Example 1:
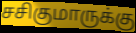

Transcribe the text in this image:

சசிகுமாருக்கு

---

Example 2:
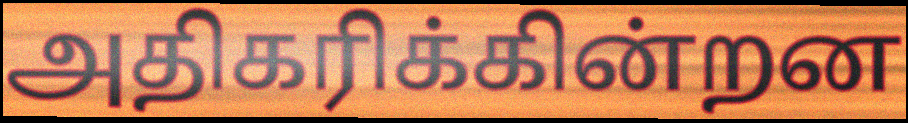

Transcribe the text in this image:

அதிகரிக்கின்றன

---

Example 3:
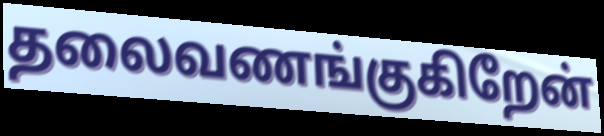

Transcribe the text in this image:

தலைவணங்குகிறேன்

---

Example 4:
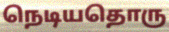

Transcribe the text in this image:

நெடியதொரு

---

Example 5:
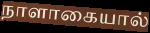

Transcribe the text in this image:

நாளாகையால்